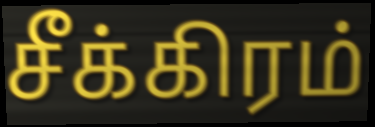
சீக்கிரம்